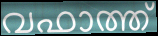
വഫാത്ത്